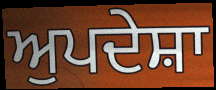
ਅੁਪਦੇਸ਼ਾ